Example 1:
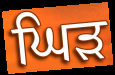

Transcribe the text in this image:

ਘਿੜ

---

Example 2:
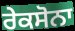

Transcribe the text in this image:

ਰੇਕਸੋਨਾ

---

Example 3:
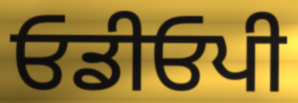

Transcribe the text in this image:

ਓਡੀਓਪੀ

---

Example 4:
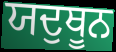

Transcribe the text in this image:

ਯਦੁਥੂਨ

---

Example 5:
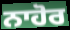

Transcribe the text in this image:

ਨਾਹੋਰ